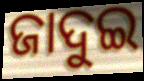
ଜାଦୁଇ